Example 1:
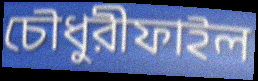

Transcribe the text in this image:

চৌধুরীফাইল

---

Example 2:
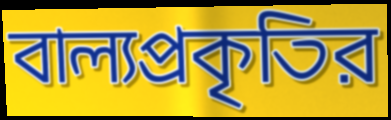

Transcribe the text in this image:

বাল্যপ্রকৃতির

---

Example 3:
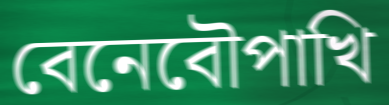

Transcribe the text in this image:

বেনেবৌপাখি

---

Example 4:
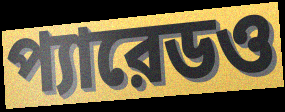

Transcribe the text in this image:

প্যারেডও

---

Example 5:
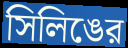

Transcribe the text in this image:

সিলিঙের